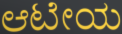
ಆಟೇಯ